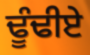
ਢੂੰਢੀਏ